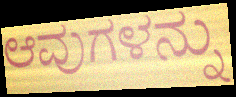
ಆವುಗಳನ್ನು